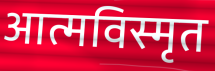
आत्मविस्मृत